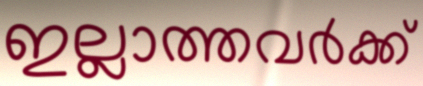
ഇല്ലാത്തവർക്ക്